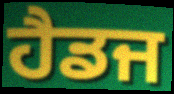
ਹੈਡਜ